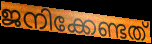
ജനിക്കേണ്ടത്